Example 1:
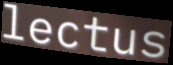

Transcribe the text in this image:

lectus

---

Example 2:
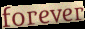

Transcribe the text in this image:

forever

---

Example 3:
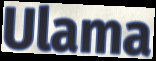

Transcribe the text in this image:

Ulama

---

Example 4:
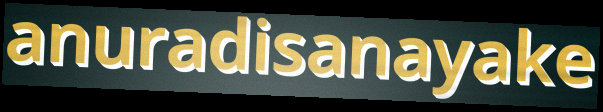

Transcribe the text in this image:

anuradisanayake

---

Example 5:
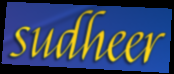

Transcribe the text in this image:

sudheer